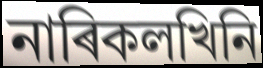
নাৰিকলখিনি